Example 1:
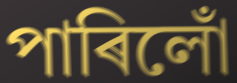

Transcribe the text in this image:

পাৰিলোঁ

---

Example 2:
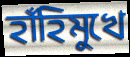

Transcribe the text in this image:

হাঁহিমুখে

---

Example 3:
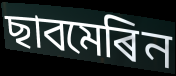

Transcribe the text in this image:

ছাবমেৰিন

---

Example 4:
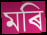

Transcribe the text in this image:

মৰি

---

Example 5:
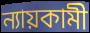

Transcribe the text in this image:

ন্যায়কামী